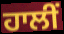
ਹਾਲੀਂ